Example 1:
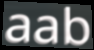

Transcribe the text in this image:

aab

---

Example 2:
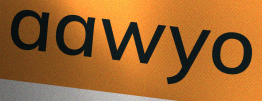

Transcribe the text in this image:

aawyo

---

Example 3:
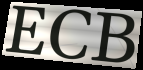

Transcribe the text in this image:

ECB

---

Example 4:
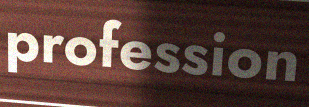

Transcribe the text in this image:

profession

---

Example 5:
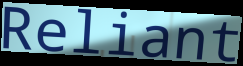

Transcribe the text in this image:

Reliant